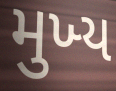
મુખ્‍ય